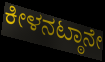
ಕೀಳನಟ್ಠಾನೇ